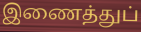
இணைத்துப்